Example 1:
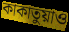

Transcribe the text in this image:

কাকাতুয়াও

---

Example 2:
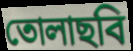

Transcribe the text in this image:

তোলাছবি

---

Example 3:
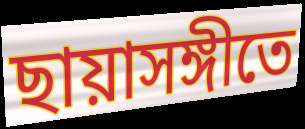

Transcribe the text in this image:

ছায়াসঙ্গীতে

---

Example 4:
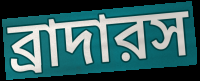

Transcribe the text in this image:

ব্রাদারস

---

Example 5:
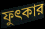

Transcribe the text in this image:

ফুৎকার